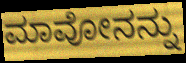
ಮಾವೋನನ್ನು